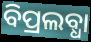
ବିପ୍ରଲବ୍ଧା